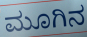
ಮೂಗಿನ